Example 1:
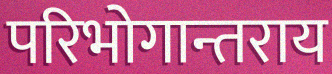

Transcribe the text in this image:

परिभोगान्तराय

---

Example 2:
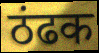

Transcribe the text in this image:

ठंढक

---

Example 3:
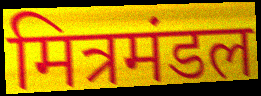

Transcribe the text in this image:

मित्रमंडल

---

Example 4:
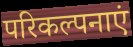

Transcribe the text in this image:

परिकल्पनाएं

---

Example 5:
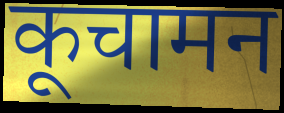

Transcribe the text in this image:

कूचामन